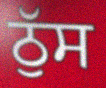
ਠੁੱਸ